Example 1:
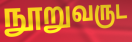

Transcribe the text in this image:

நூறுவருட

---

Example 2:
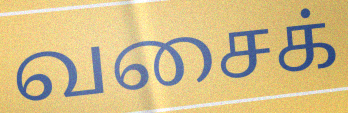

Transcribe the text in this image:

வசைக்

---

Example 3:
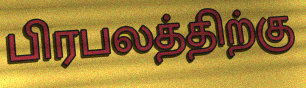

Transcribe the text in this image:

பிரபலத்திற்கு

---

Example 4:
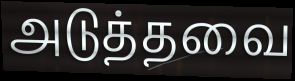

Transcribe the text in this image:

அடுத்தவை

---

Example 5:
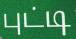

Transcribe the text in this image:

புட்டி